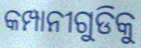
କମ୍ପାନୀଗୁଡିକୁ